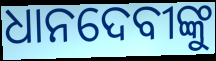
ଧାନଦେବୀଙ୍କୁ